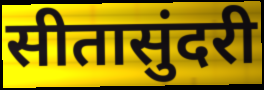
सीतासुंदरी